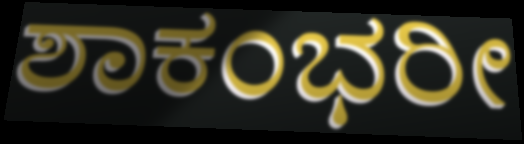
ಶಾಕಂಭರೀ